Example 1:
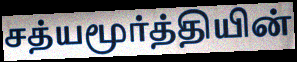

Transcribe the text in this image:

சத்யமூர்த்தியின்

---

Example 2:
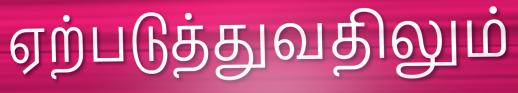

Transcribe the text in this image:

ஏற்படுத்துவதிலும்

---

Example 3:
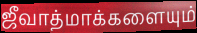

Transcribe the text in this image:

ஜீவாத்மாக்களையும்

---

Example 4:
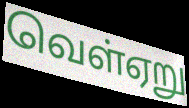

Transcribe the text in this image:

வெள்ஏறு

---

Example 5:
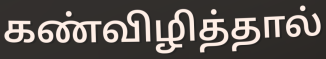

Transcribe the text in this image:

கண்விழித்தால்